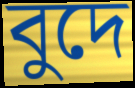
বুদে